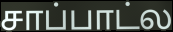
சாப்பாட்ல